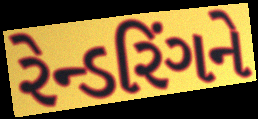
રેન્ડરિંગને